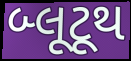
બ્લૂટૂથ